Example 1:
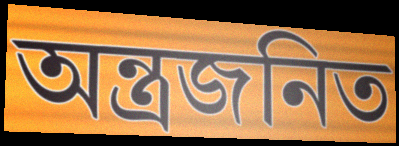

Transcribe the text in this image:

অন্ত্রজনিত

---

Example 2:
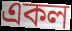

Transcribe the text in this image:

একল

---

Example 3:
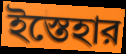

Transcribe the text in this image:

ইস্তেহার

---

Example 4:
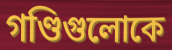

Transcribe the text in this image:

গণ্ডিগুলোকে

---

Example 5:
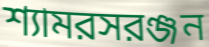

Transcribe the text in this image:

শ্যামরসরঞ্জন